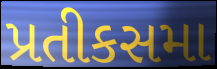
પ્રતીકસમા